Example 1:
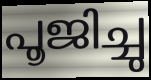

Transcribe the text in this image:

പൂജിച്ചു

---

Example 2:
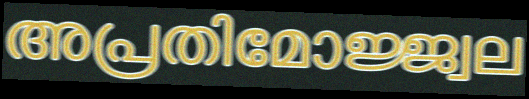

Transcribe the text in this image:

അപ്രതിമോജ്ജ്വല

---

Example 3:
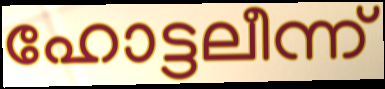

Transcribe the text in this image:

ഹോട്ടലീന്ന്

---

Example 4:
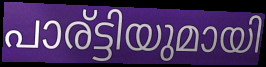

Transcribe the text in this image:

പാര്ട്ടിയുമായി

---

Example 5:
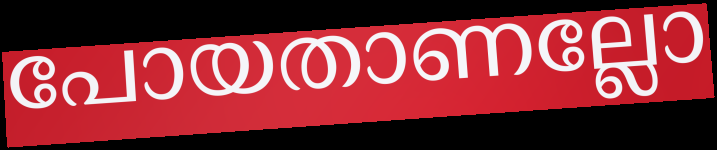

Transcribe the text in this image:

പോയതാണല്ലോ